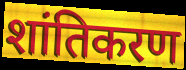
शांतिकरण